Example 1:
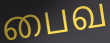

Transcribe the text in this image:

பைவ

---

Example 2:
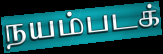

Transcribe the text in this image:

நயம்படக்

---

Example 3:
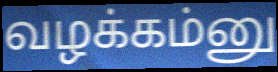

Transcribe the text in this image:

வழக்கம்னு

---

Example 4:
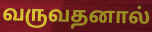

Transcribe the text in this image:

வருவதனால்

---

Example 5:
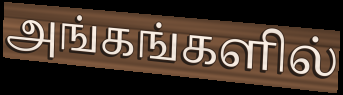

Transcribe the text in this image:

அங்கங்களில்